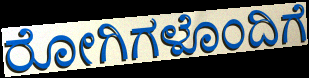
ರೋಗಿಗಳೊಂದಿಗೆ